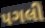
પગલી